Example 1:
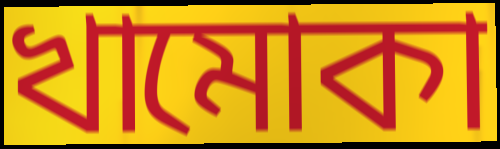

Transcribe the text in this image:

খামোকা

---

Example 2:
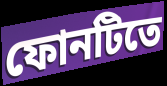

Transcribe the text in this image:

ফোনটিতে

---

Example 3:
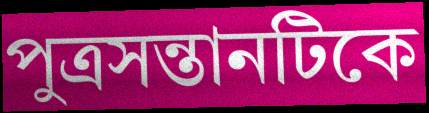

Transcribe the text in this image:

পুত্রসন্তানটিকে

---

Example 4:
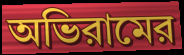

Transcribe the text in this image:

অভিরামের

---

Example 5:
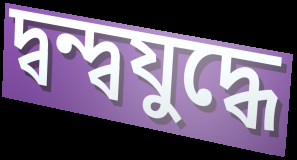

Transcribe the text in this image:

দ্বন্দ্বযুদ্ধে